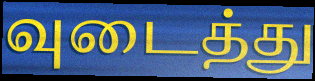
வுடைத்து